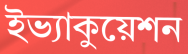
ইভ্যাকুয়েশন